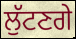
ਲੁੱਟਣਗੇ